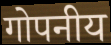
गोपनीय